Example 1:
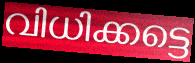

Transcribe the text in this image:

വിധിക്കട്ടെ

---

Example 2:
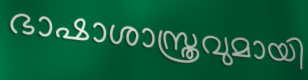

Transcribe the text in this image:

ഭാഷാശാസ്ത്രവുമായി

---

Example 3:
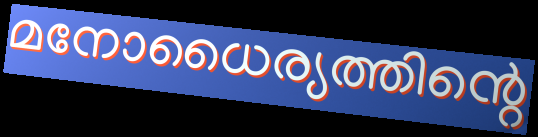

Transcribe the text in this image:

മനോധൈര്യത്തിന്റെ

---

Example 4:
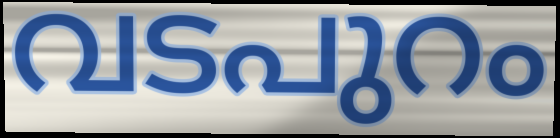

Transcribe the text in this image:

വടപുറം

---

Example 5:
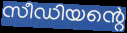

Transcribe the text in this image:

സീഡിയന്റെ